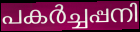
പകർച്ചപ്പനി